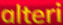
alteri